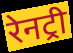
रेनट्री